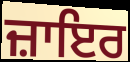
ਜ਼ਾਇਰ